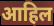
आहिल